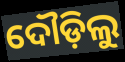
ଦୌଡ଼ିଲୁ